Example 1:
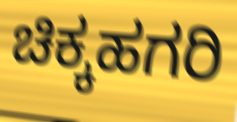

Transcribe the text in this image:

ಚಿಕ್ಕಹಗರಿ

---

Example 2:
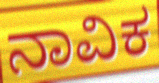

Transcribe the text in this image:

ನಾವಿಕ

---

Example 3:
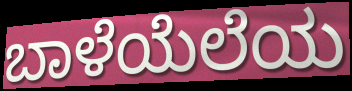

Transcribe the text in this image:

ಬಾಳೆಯೆಲೆಯ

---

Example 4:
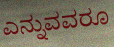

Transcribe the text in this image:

ಎನ್ನುವವರೂ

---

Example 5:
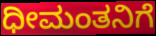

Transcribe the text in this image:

ಧೀಮಂತನಿಗೆ